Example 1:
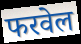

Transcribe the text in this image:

फरवेल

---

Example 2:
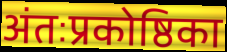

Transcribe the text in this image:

अंतःप्रकोष्ठिका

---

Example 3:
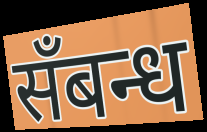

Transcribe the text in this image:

सँबन्ध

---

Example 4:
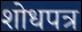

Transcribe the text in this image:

शोधपत्र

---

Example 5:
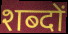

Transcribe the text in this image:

शब्‍दों